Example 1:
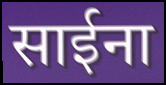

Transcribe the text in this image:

साईना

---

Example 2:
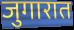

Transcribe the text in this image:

जुगारात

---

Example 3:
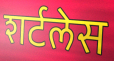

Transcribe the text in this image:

शर्टलेस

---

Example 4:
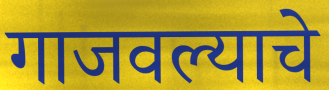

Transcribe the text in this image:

गाजवल्याचे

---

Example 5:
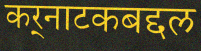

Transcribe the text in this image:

कर्नाटकबद्दल